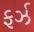
ફર્ઝ